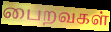
பைறவகள்